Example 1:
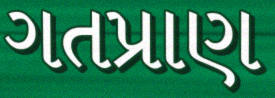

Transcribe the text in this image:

ગતપ્રાણ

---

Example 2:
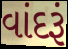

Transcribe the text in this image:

વાંદરૂં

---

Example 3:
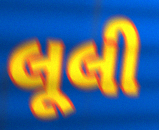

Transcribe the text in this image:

લૂલી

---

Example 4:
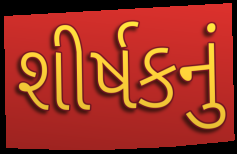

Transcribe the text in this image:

શીર્ષકનું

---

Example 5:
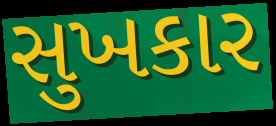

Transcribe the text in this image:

સુખકાર